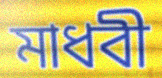
মাধবী